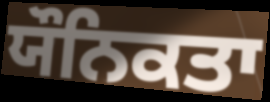
ਯੌਨਿਕਤਾ